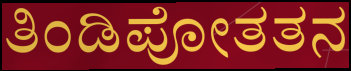
ತಿಂಡಿಪೋತತನ